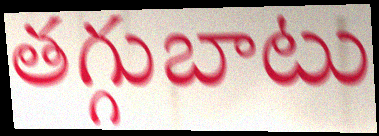
తగ్గుబాటు